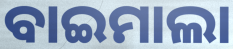
ବାଇମାଲା